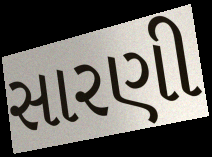
સારણી